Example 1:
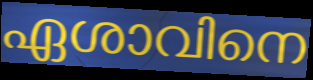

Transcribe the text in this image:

ഏശാവിനെ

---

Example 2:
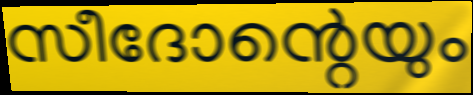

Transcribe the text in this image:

സീദോന്റെയും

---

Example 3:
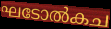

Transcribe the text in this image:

ഘടോൽകച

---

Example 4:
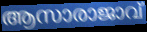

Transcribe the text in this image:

ആസാരാജാവ്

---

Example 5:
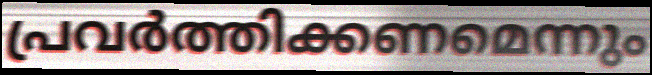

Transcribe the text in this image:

പ്രവർത്തിക്കണമെന്നും